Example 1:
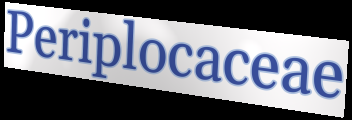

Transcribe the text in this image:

Periplocaceae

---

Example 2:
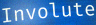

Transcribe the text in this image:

Involute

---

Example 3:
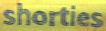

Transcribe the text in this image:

shorties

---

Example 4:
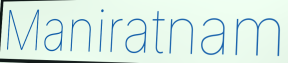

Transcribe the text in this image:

Maniratnam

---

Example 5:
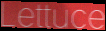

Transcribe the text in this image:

Lettuce